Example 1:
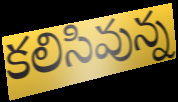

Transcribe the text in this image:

కలిసివున్న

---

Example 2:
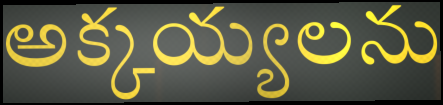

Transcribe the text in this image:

అక్కయ్యలను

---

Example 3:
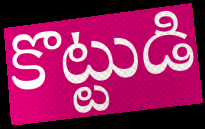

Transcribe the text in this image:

కొట్టుడి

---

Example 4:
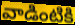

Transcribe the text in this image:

వాడింటికి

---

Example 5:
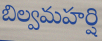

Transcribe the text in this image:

బిల్వమహర్షి